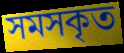
সমসকৃত